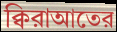
ক্বিরাআতের